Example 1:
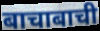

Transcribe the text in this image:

बाचाबाची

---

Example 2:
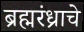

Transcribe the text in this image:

ब्रह्मरंध्राचे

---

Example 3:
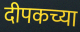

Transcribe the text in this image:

दीपकच्या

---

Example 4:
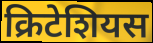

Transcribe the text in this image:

क्रिटेशियस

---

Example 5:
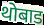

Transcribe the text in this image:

थोबाड